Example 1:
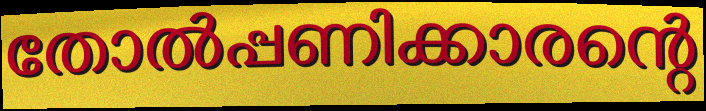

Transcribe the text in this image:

തോൽപ്പണിക്കാരന്റെ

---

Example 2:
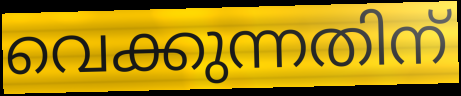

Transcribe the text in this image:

വെക്കുന്നതിന്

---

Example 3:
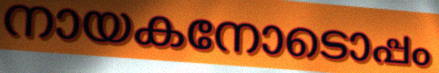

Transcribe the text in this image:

നായകനോടൊപ്പം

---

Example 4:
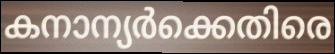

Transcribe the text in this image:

കനാന്യർക്കെതിരെ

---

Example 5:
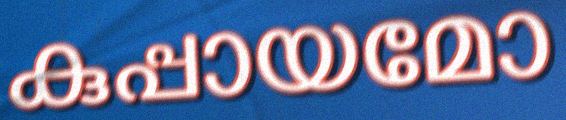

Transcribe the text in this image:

കുപ്പായമോ